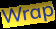
Wrap